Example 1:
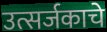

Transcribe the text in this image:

उत्सर्जकाचे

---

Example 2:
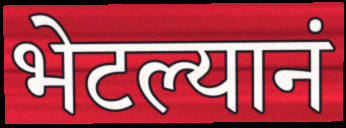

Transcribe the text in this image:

भेटल्यानं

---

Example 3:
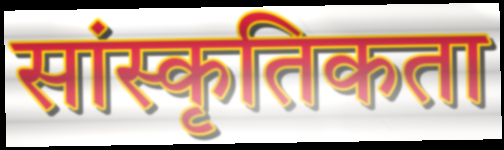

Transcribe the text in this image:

सांस्कृतिकता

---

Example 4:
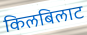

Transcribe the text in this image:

किलबिलाट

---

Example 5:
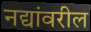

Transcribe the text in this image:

नद्यांवरील